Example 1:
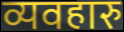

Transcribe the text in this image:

व्यवहारु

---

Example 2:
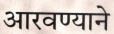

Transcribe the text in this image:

आरवण्याने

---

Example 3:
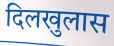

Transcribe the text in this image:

दिलखुलास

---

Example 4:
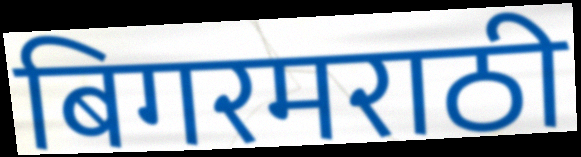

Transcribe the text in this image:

बिगरमराठी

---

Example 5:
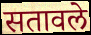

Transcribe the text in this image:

सतावले